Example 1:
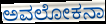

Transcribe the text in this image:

ಅವಲೋಕನಾ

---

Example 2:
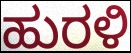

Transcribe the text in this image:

ಹುರಳಿ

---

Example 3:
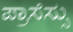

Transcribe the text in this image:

ಪ್ರಾಸೆಸ್ಸು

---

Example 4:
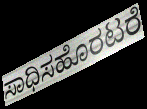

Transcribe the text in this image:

ಸಾಧಿಸಹೊರಟರೆ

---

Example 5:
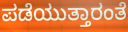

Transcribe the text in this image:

ಪಡೆಯುತ್ತಾರಂತೆ